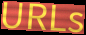
URLs